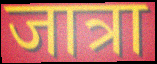
जात्रा